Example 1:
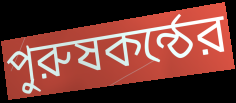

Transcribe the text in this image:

পুরুষকন্ঠের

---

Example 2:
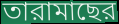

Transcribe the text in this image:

তারামাছের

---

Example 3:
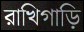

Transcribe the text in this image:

রাখিগাড়ি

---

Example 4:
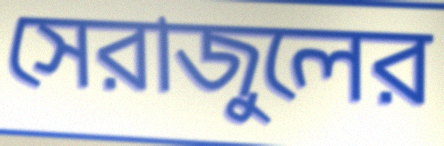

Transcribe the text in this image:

সেরাজুলের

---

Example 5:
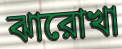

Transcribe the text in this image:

ঝারোখা